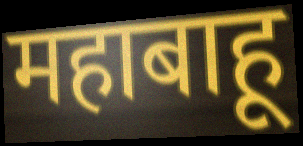
महाबाहू